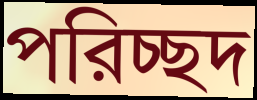
পরিচ্ছদ